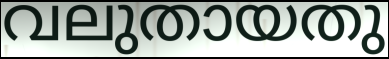
വലുതായതു